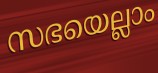
സഭയെല്ലാം